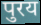
पुरय